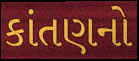
કાંતણનો